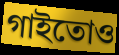
গাইতোও